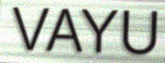
VAYU